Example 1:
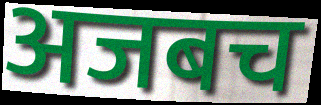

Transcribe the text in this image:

अजबच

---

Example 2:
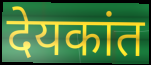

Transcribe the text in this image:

देयकांत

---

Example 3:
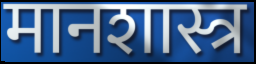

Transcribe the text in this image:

मानशास्त्र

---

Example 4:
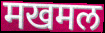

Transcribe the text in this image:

मखमल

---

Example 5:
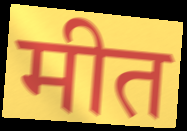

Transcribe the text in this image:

मीत